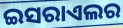
ଇସରାଏଲର